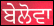
ਬੇਲੋਵਾ